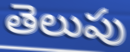
తెలుపు